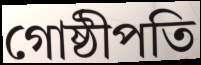
গোষ্ঠীপতি